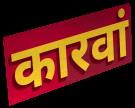
कारवां